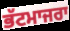
ਭੱਟਮਾਜਰਾ